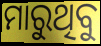
ମାରୁଥିବୁ